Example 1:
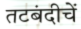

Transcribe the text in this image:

तटबंदीचें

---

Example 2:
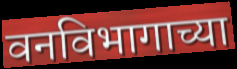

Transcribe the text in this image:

वनविभागाच्या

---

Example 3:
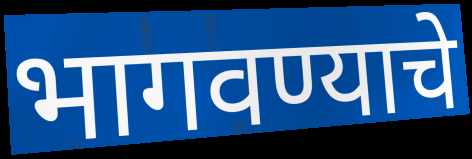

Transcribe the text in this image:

भागवण्याचे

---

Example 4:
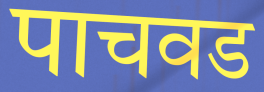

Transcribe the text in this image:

पाचवड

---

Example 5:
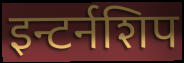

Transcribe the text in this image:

इन्टर्नशिप